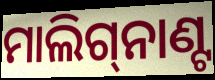
ମାଲିଗ୍‌ନାଣ୍ଟ